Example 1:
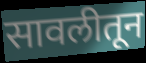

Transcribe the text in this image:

सावलीतून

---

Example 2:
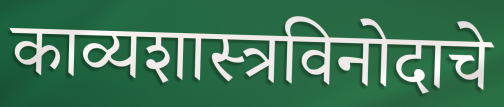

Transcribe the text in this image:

काव्यशास्त्रविनोदाचे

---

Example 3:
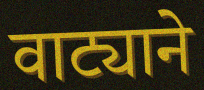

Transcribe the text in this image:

वाट्याने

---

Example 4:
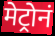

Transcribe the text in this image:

मेट्रोनं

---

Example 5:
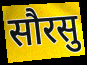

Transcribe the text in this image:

सौरसु